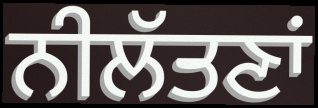
ਨੀਲੱਤਣਾਂ